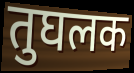
तुघलक